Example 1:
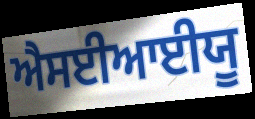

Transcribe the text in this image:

ਐਸਈਆਈਯੂ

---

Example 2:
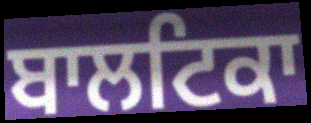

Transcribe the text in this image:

ਬਾਲਟਿਕਾ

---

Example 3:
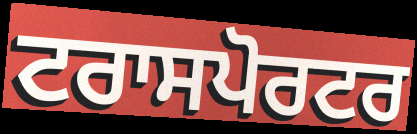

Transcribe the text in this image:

ਟਰਾਸਪੋਰਟਰ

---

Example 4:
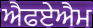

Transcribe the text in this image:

ਐਫਏਐਮ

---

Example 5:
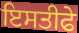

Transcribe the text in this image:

ਇਸਤੀਫੇ